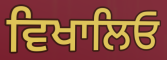
ਵਿਖਾਲਿਓ